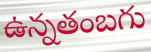
ఉన్నతంబగు